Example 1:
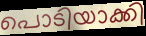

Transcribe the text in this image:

പൊടിയാക്കി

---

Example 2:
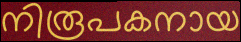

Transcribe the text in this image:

നിരൂപകനായ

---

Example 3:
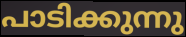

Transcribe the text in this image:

പാടിക്കുന്നു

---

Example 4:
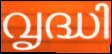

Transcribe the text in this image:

വൃദ്ധി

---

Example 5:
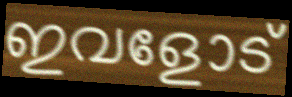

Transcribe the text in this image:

ഇവളോട്